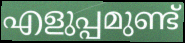
എളുപ്പമുണ്ട്